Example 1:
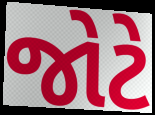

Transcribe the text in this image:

જોટે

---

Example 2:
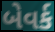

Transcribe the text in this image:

બેવર્ક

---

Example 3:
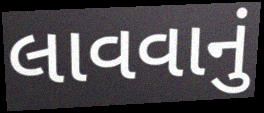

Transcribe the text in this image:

લાવવાનું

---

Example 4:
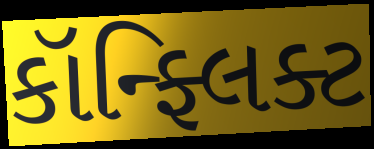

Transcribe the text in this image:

કૉન્ફ્લિક્ટ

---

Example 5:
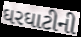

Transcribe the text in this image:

ઘરઘાટીની